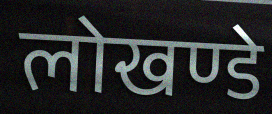
लोखण्डे